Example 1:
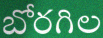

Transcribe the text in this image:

బోరగిల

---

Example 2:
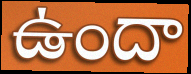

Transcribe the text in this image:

ఉందా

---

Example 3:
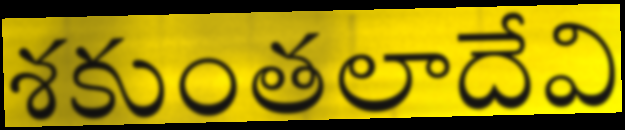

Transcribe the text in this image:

శకుంతలాదేవి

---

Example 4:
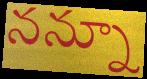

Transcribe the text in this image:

నన్నూ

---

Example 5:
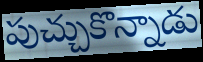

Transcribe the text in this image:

పుచ్చుకొన్నాడు